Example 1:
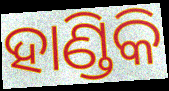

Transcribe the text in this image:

ହାଣ୍ଡିକି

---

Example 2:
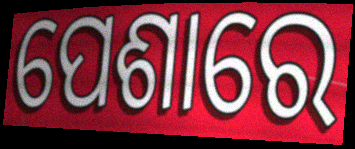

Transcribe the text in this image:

ପେଶାରେ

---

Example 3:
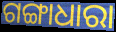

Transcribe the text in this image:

ଗଙ୍ଗାଧାରା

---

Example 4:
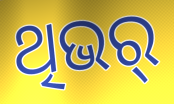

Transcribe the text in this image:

ଥିଭର୍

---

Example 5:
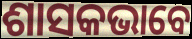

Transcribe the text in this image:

ଶାସକଭାବେ